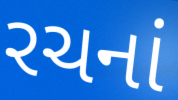
રચનાં